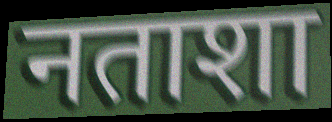
नताशा